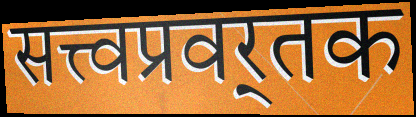
सत्त्वप्रवर्तक